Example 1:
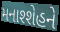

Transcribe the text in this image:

મનાશ્શેહને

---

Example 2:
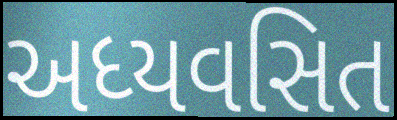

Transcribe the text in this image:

અધ્યવસિત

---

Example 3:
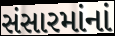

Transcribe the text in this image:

સંસારમાંનાં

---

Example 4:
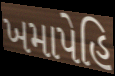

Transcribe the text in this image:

ખમાપેહિ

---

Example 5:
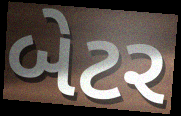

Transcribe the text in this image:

બેટર